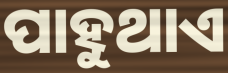
ପାହୁଥାଏ